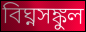
বিঘ্নসঙ্কুল